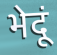
भेदूं